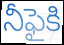
నీఫైకి